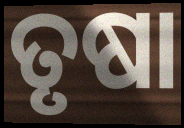
ତୃଷା